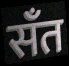
सँत